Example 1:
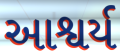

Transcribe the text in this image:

આશ્વર્ય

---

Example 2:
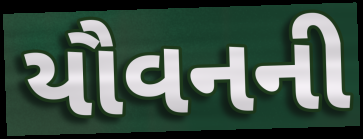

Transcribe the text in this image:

યૌવનની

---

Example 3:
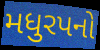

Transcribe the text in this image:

મધુરપનો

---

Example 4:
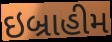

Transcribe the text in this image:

ઇબ્રાહીમ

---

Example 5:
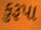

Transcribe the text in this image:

કુરૂપા